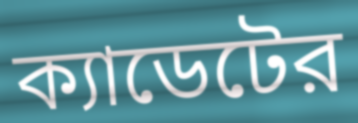
ক্যাডেটের